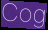
Cog